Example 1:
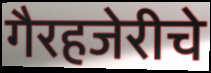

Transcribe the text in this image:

गैरहजेरीचे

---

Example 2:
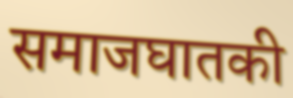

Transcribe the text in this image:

समाजघातकी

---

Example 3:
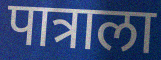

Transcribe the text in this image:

पात्राला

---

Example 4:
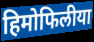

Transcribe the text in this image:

हिमोफिलीया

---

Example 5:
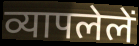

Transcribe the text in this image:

व्यापलेलें